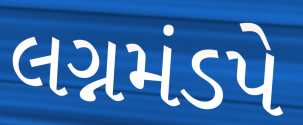
લગ્નમંડપે